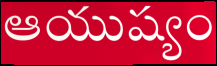
ఆయుష్యం